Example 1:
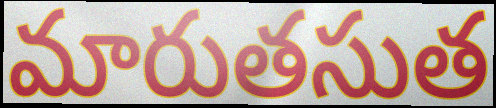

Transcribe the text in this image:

మారుతసుత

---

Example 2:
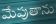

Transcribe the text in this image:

మేపుతాను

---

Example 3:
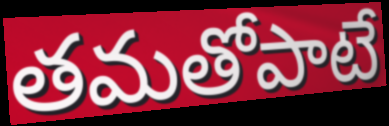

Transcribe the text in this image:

తమతోపాటే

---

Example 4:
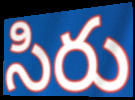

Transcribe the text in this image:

సిరు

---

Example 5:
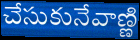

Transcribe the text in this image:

చేసుకునేవాణ్ణి